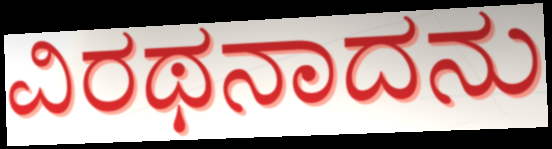
ವಿರಥನಾದನು